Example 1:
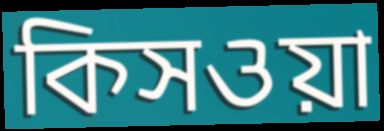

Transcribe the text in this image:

কিসওয়া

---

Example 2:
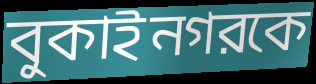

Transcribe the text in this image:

বুকাইনগরকে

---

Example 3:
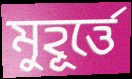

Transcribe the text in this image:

মুহূর্ত্তে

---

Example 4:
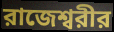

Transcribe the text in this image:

রাজেশ্বরীর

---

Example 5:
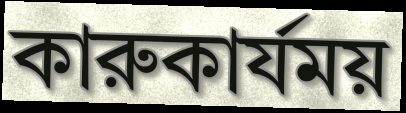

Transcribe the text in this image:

কারুকার্যময়